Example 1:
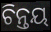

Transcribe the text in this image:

ଚିନ୍ତୟ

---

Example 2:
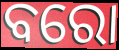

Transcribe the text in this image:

ବରୋ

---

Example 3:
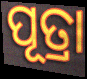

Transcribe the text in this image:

ପୂତ୍ରା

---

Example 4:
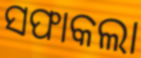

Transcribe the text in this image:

ସଫାକଲା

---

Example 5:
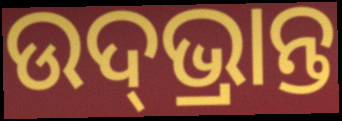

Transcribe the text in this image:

ଉଦ୍‌ଭ୍ରାନ୍ତ